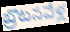
బ్రొటనవేళ్ల